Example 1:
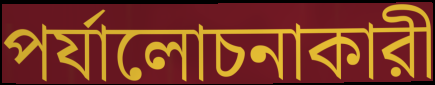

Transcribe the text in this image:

পর্যালোচনাকারী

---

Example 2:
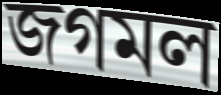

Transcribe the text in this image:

জগমল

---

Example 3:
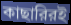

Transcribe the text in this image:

কাছারিরই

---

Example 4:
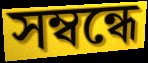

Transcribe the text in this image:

সম্বন্ধে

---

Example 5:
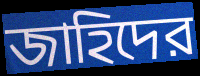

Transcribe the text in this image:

জাহিদের